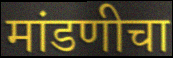
मांडणीचा